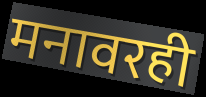
मनावरही